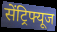
सेंट्रिफ्यूज